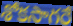
శోకసాగరే